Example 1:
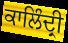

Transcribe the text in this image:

ਕਾਲਿੰਦ੍ਰੀ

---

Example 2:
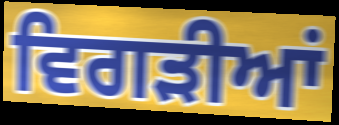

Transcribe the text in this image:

ਵਿਗੜੀਆਂ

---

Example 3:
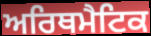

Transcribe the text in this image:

ਅਰਿਥਮੈਟਿਕ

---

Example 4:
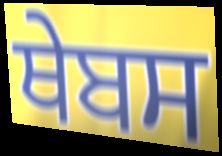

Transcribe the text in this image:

ਥੇਬਸ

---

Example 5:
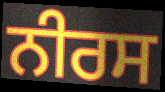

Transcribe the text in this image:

ਨੀਰਸ